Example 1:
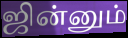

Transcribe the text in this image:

ஜின்னும்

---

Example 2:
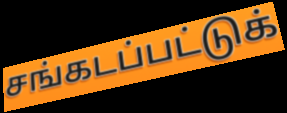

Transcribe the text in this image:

சங்கடப்பட்டுக்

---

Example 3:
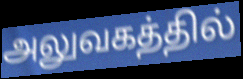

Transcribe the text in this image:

அலுவகத்தில்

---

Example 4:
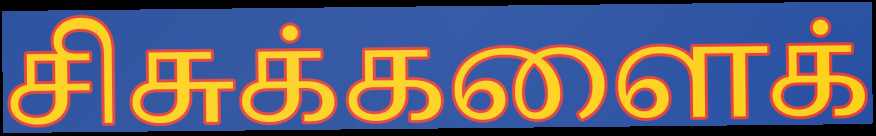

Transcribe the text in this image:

சிசுக்களைக்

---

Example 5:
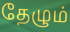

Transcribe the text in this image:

தேழும்